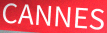
CANNES